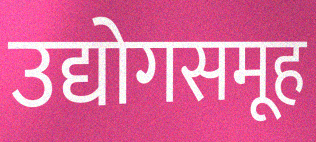
उद्योगसमूह